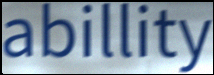
abillity